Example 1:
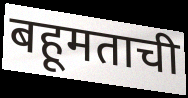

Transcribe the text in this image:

बहूमताची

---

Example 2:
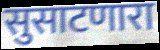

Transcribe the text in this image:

सुसाटणारा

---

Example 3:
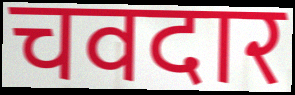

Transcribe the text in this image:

चवदार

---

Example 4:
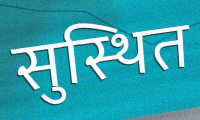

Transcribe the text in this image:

सुस्थित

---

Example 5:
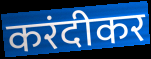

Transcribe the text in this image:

करंदीकर